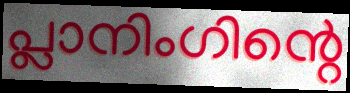
പ്ലാനിംഗിന്റെ